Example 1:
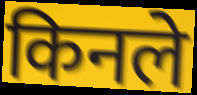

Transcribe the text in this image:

किनले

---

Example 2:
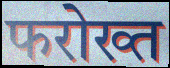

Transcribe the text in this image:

फरोख्‍त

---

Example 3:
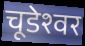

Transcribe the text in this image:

चूडेश्वर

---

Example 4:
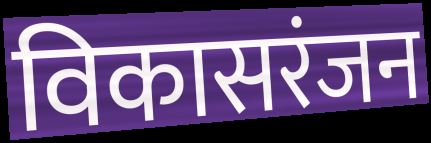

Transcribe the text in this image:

विकासरंजन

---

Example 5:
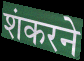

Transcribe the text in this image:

शंकरने